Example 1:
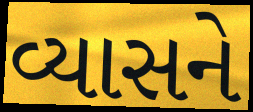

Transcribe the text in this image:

વ્યાસને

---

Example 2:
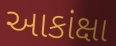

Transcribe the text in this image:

આકાંક્ષા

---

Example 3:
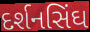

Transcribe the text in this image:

દર્શનસિંઘ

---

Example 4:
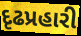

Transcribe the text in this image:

દૃઢપ્રહારી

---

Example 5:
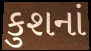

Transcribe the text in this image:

કુશનાં